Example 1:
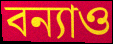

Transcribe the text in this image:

বন্যাও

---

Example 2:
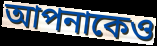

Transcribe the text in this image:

আপনাকেও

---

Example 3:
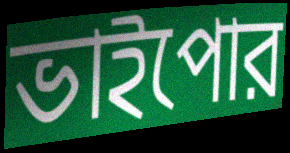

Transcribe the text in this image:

ভাইপোর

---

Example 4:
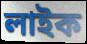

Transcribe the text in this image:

লাইক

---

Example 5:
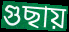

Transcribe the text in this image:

গুছায়